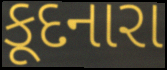
કૂદનારા